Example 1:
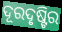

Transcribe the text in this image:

ଦୂରଦୃଷ୍ଟିର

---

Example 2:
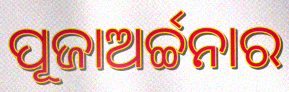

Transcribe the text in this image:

ପୂଜାଅର୍ଚ୍ଚନାର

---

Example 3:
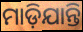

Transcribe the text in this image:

ମାଡ଼ିଯାନ୍ତି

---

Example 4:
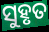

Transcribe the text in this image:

ସୁହୃତ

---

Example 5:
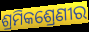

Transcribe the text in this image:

ଶ୍ରମିକଶ୍ରେଣୀର